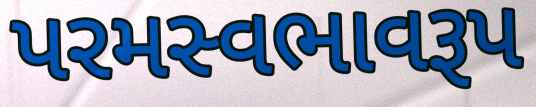
પરમસ્વભાવરૂપ